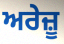
ਅਰੇਜ਼ੂ